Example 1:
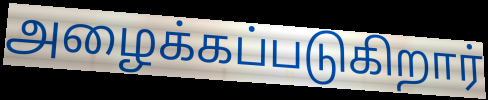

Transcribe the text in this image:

அழைக்கப்படுகிறார்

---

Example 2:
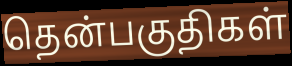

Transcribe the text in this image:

தென்பகுதிகள்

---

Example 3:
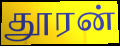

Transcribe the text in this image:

தூரன்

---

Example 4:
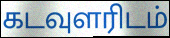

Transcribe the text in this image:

கடவுளரிடம்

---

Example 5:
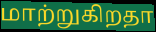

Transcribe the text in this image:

மாற்றுகிறதா